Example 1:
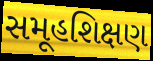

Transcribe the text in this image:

સમૂહશિક્ષણ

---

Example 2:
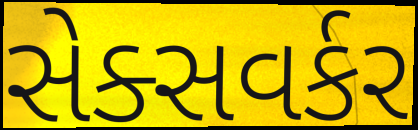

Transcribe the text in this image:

સેક્સવર્કર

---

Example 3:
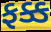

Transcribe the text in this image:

ફક્ક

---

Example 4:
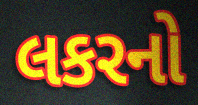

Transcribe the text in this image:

લકરનો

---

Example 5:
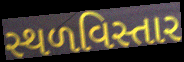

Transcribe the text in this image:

સ્થળવિસ્તાર